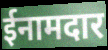
ईनामदार